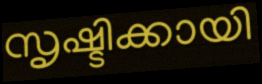
സൃഷ്ടിക്കായി